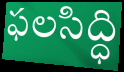
ఫలసిద్ధి